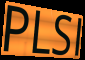
PLSI